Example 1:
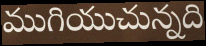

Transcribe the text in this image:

ముగియుచున్నది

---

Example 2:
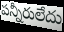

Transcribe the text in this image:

పన్నీరులేదు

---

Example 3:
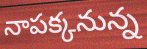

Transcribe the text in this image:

నాపక్కనున్న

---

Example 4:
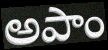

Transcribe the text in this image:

అపాం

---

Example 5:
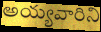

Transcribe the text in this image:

అయ్యవారిని